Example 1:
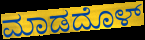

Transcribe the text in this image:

ಮಾಡದೊಳ್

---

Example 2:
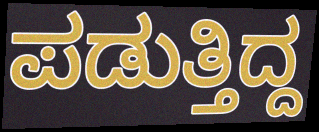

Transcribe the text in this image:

ಪಡುತ್ತಿದ್ದ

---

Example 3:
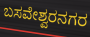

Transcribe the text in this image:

ಬಸವೇಶ್ವರನಗರ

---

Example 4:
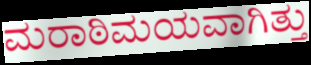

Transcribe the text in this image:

ಮರಾಠಿಮಯವಾಗಿತ್ತು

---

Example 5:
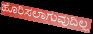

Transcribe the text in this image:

ಹೊರಿಸಲಾಗುವುದಿಲ್ಲ